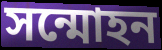
সন্মোহন